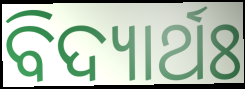
ବିଦ୍ୟାର୍ଥଃ